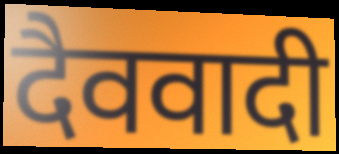
दैववादी